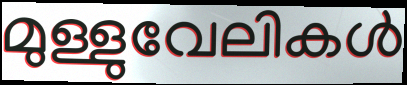
മുള്ളുവേലികൾ